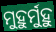
ମୁହୁର୍ମୁହୁ